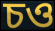
চও